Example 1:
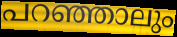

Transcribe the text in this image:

പറഞ്ഞാലും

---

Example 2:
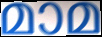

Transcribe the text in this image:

മാമ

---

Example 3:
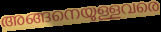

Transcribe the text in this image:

അങ്ങനെയുള്ളവരെ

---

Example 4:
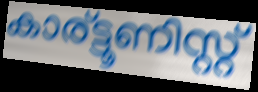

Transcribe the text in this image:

കാര്ട്ടൂണിസ്റ്റ്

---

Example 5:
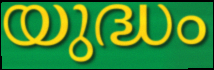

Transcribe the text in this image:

യുദ്ധം